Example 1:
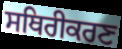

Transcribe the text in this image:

ਸਥਿਰੀਕਰਣ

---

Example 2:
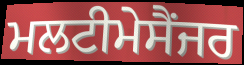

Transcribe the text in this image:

ਮਲਟੀਮੇਸੈਂਜਰ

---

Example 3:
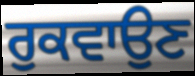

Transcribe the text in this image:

ਰੁਕਵਾਉਣ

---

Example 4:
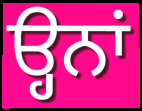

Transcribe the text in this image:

ੳ੍ਹਨਾਂ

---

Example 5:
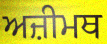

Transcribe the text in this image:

ਅਜ਼ੀਮਥ